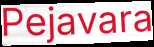
Pejavara